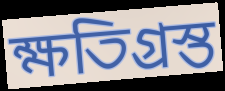
ক্ষতিগ্রস্ত